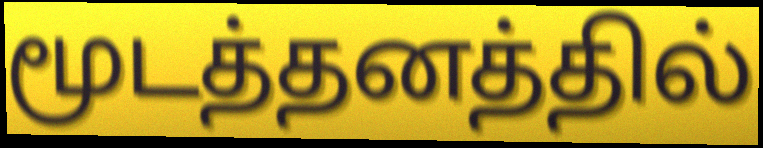
மூடத்தனத்தில்